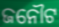
ଜନୌଟ